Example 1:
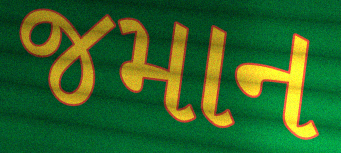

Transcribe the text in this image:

જમાન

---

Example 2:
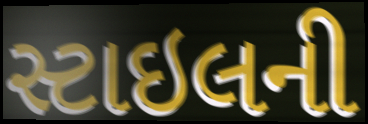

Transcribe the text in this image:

સ્ટાઇલની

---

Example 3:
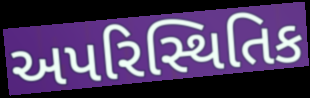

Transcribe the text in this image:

અપરિસ્થિતિક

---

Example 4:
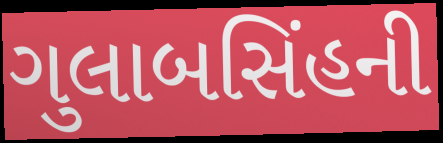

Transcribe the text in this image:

ગુલાબસિંહની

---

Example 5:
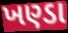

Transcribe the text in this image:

ખણ્ડા